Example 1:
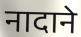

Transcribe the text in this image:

नादाने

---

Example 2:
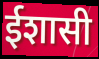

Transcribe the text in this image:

ईशासी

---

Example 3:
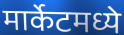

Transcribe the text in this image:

मार्केटमध्ये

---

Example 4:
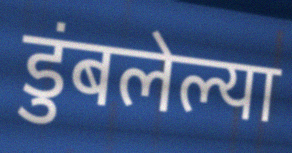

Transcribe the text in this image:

डुंबलेल्या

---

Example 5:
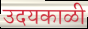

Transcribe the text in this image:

उदयकाळी